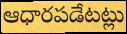
ఆధారపడేటట్లు